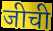
जीची